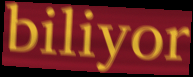
biliyor